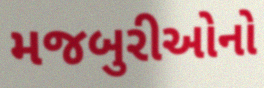
મજબુરીઓનો